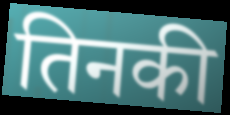
तिनकी